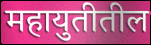
महायुतीतील